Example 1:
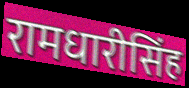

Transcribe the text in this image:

रामधारीसिंह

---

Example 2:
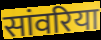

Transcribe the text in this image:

सांवरिया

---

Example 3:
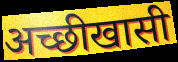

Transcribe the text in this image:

अच्छीखासी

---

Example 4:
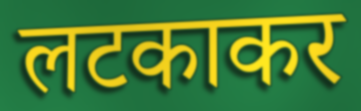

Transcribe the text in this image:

लटकाकर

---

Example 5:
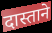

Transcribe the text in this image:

दास्ताने